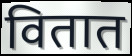
वितात